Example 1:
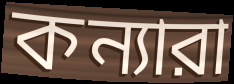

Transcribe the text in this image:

কন্যারা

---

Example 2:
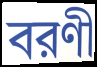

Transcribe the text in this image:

বরণী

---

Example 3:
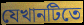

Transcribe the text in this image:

যেখানটিতে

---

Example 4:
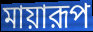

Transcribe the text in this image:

মায়ারূপ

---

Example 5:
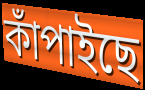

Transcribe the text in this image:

কাঁপাইছে